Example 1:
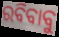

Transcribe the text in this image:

ରବିବାବୁ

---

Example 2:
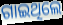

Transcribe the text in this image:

ଗାଇଥିଲେ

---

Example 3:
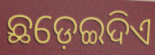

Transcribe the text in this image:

ଛଡ଼େଇଦିଏ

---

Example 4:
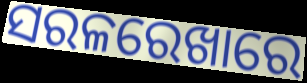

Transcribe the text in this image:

ସରଳରେଖାରେ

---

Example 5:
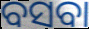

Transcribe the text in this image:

ବସବା